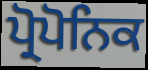
ਪ੍ਰੋਪੋਨਿਕ